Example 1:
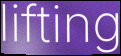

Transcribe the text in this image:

lifting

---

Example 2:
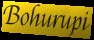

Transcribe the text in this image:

Bohurupi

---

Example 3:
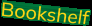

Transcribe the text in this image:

Bookshelf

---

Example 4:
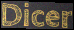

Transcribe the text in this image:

Dicer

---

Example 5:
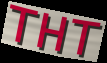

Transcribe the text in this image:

THT